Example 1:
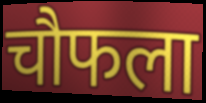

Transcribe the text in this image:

चौफला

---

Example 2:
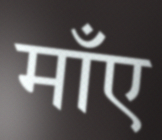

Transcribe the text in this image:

माँए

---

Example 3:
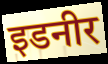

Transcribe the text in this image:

इडनीर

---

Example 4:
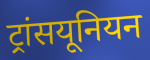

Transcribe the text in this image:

ट्रांसयूनियन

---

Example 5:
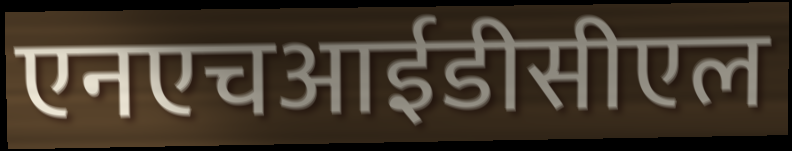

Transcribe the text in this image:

एनएचआईडीसीएल